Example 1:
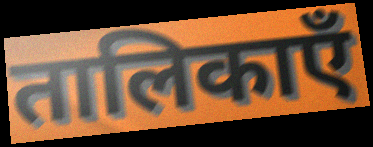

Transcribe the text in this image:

तालिकाएँ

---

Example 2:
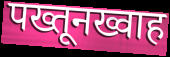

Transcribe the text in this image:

पख्तूनख्वाह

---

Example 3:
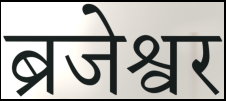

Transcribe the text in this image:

ब्रजेश्वर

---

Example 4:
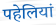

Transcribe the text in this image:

पहेलियां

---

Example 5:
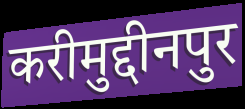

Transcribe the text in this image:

करीमुद्दीनपुर